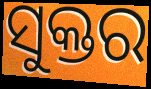
ସୁକ୍ତର